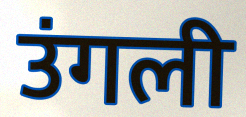
उंगली